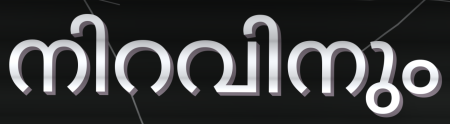
നിറവിനും